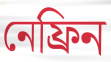
নেফ্রিন